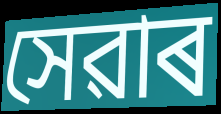
সেৱাৰ